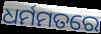
ଧର୍ମମତରେ